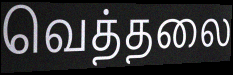
வெத்தலை